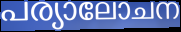
പര്യാലോചന